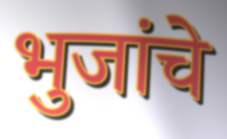
भुजांचे